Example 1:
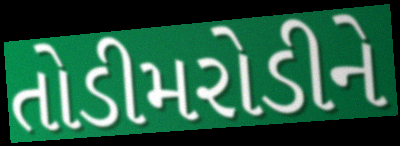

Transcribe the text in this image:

તોડીમરોડીને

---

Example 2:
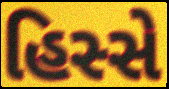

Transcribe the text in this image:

હિસ્સે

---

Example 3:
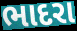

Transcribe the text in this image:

ભાદરા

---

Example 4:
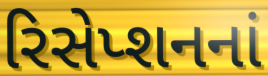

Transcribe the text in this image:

રિસેપ્શનનાં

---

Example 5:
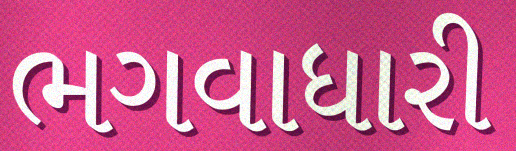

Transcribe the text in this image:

ભગવાધારી